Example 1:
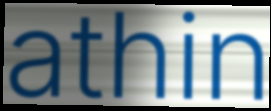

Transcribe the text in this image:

athin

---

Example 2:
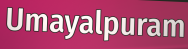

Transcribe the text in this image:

Umayalpuram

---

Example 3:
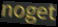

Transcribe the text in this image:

noget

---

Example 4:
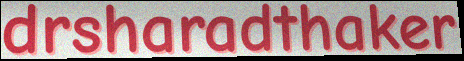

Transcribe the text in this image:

drsharadthaker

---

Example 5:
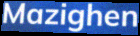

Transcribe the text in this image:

Mazighen